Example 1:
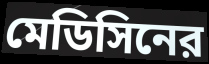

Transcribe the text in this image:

মেডিসিনের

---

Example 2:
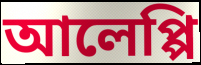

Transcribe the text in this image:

আলেপ্পি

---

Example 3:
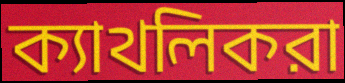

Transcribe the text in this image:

ক্যাথলিকরা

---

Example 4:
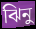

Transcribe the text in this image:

ঝিনু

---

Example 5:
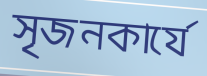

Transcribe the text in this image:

সৃজনকার্যে